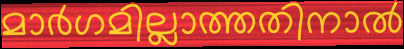
മാർഗമില്ലാത്തതിനാൽ